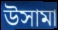
উসামা